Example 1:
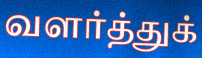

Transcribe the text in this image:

வளர்த்துக்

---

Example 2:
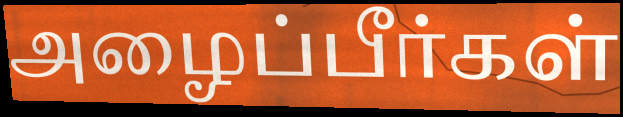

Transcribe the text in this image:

அழைப்பீர்கள்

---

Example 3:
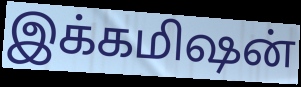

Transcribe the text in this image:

இக்கமிஷன்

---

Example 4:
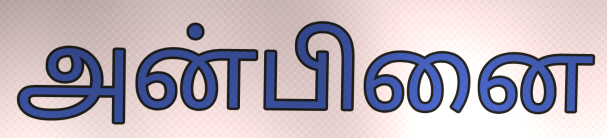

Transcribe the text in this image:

அன்பினை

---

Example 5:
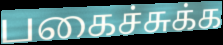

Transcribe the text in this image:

பகைச்சுக்க